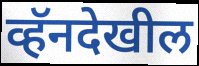
व्हॅनदेखील